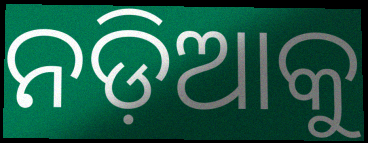
ନଡ଼ିଆକୁ